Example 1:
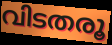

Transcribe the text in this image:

വിടതരൂ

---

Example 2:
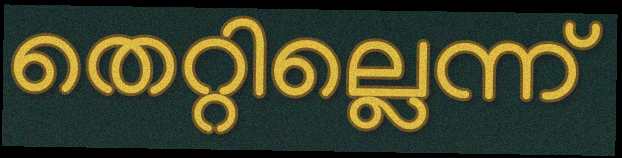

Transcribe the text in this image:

തെറ്റില്ലെന്ന്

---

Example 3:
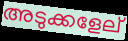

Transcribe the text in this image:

അടുക്കളേല്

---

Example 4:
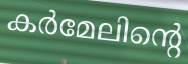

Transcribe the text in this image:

കർമേലിന്റെ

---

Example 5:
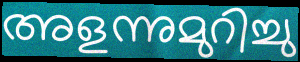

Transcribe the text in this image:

അളന്നുമുറിച്ചു